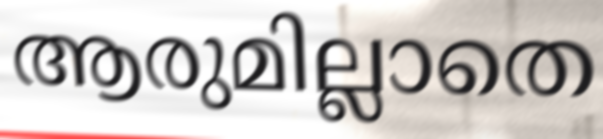
ആരുമില്ലാതെ